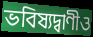
ভবিষ্যদ্বাণীও